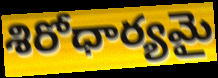
శిరోధార్యమై